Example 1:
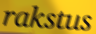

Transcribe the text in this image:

rakstus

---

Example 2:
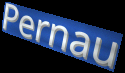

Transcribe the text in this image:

Pernau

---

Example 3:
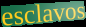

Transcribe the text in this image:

esclavos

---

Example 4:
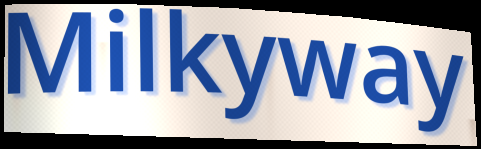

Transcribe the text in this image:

Milkyway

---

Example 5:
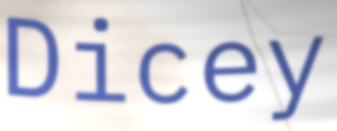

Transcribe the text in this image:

Dicey